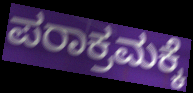
ಪರಾಕ್ರಮಕ್ಕೆ